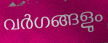
വർഗങ്ങളും